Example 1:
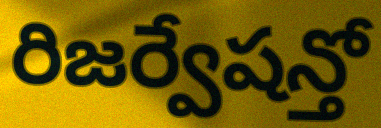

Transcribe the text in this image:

రిజర్వేషన్తో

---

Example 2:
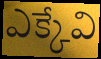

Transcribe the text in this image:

ఎక్కేవి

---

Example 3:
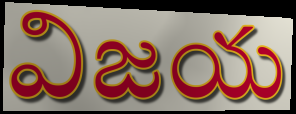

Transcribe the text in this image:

విజయ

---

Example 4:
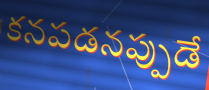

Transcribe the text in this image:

కనపడనప్పుడే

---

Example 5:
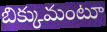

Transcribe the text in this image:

బిక్కుమంటూ